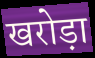
खरोड़ा